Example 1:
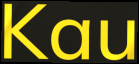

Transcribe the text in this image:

Kau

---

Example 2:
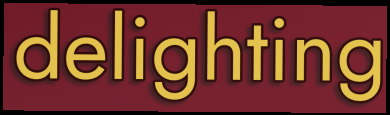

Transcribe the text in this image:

delighting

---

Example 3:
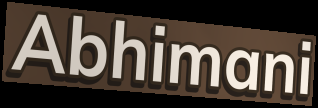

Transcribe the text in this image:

Abhimani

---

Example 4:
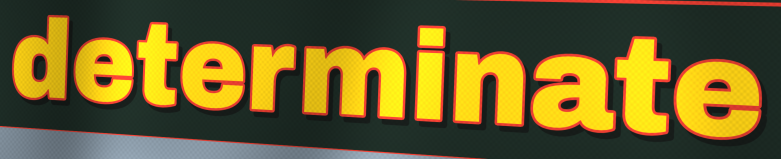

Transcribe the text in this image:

determinate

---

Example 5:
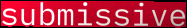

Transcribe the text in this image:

submissive